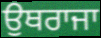
ਉਥਰਾਜਾ